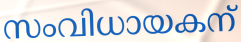
സംവിധായകന്